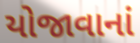
યોજાવાનાં